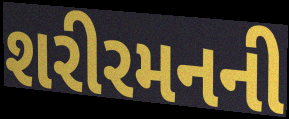
શરીરમનની